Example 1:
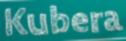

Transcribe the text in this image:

Kubera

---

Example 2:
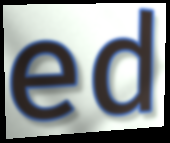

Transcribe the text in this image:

ed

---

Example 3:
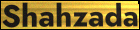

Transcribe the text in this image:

Shahzada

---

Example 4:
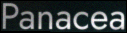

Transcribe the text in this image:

Panacea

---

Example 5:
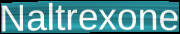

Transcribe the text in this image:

Naltrexone